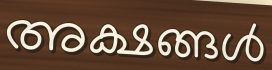
അക്ഷങ്ങൾ